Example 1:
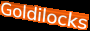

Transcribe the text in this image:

Goldilocks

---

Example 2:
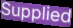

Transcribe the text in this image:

Supplied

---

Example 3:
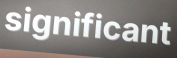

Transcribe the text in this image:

significant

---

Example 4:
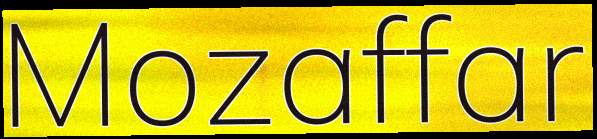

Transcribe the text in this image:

Mozaffar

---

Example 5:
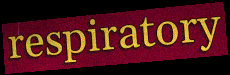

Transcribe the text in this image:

respiratory